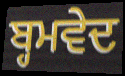
ਬ੍ਹਮਵੇਦ